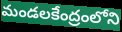
మండలకేంద్రంలోని